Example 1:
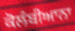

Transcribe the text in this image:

ਕੋਲੰਬੀਆਨਾ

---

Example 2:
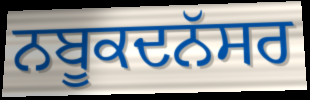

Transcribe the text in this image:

ਨਬੂਕਦਨੱਸਰ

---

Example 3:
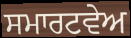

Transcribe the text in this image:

ਸਮਾਰਟਵੇਅ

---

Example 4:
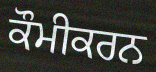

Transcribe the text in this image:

ਕੌਮੀਕਰਨ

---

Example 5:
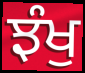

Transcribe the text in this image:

ਝੰਖੁ